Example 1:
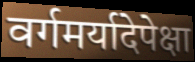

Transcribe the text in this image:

वर्गमर्यादेपेक्षा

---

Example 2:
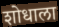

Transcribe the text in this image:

शोधाला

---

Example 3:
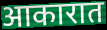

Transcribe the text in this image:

आकारात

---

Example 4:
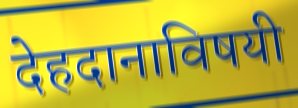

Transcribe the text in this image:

देहदानाविषयी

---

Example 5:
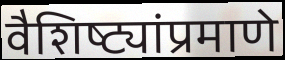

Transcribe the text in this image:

वैशिष्ट्यांप्रमाणे